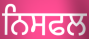
ਨਿਸਫਲ